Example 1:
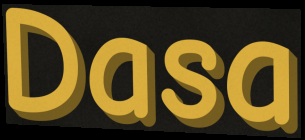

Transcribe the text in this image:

Dasa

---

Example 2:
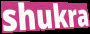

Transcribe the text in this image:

shukra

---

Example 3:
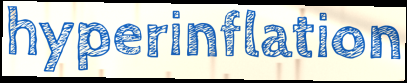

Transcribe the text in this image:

hyperinflation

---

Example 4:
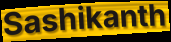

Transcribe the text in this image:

Sashikanth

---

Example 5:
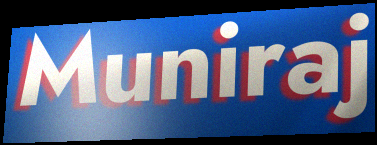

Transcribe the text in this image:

Muniraj